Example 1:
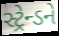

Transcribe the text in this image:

સ્ટ્રેન્ડને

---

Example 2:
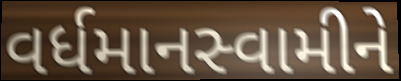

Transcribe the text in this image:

વર્ધમાનસ્વામીને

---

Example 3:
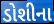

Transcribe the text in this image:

ડોશીના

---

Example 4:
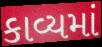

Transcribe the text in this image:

કાવ્યમાં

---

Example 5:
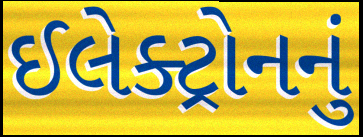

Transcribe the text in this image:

ઈલેક્ટ્રોનનું